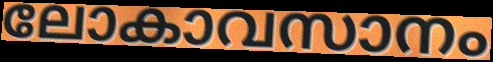
ലോകാവസാനം